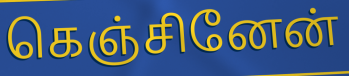
கெஞ்சினேன்